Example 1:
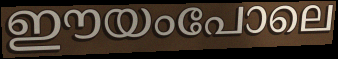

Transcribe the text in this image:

ഈയംപോലെ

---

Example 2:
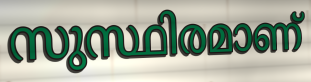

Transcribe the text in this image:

സുസ്ഥിരമാണ്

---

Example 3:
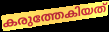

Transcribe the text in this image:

കരുത്തേകിയത്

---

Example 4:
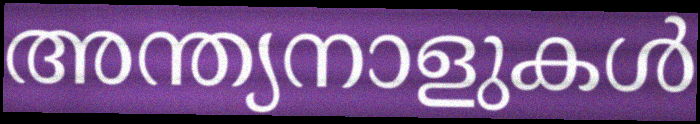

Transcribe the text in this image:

അന്ത്യനാളുകൾ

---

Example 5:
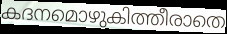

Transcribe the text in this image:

കദനമൊഴുകിത്തീരാതെ